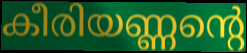
കീരിയണ്ണന്റെ